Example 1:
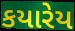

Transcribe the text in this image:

કયારેય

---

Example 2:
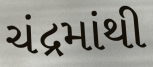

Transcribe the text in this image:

ચંદ્રમાંથી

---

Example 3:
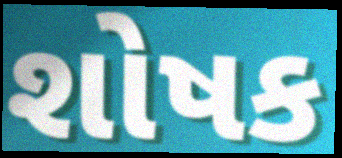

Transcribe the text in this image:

શોષક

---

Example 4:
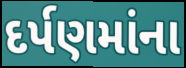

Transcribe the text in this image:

દર્પણમાંના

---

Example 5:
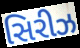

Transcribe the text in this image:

સિરીઝ